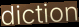
diction